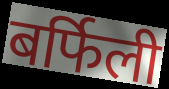
बर्फिली